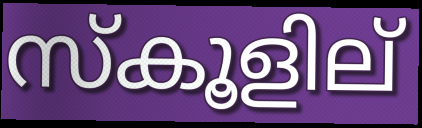
സ്കൂളില്